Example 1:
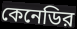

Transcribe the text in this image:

কেনেডির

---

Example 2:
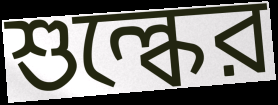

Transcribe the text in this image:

শুল্কের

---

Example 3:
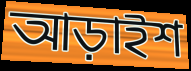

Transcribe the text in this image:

আড়াইশ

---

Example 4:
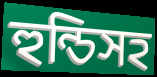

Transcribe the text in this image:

হুন্ডিসহ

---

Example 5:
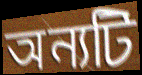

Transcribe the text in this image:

অন্যটি